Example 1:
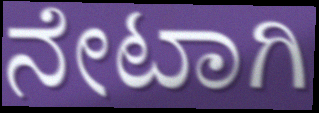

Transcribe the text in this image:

ನೇಟಾಗಿ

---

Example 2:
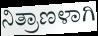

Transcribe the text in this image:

ನಿತ್ರಾಣಳಾಗಿ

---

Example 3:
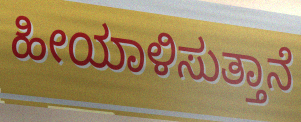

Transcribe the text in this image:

ಹೀಯಾಳಿಸುತ್ತಾನೆ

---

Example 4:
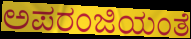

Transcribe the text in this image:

ಅಪರಂಜಿಯಂತೆ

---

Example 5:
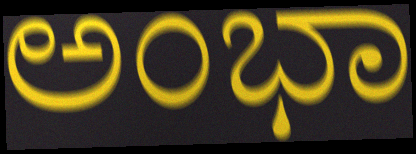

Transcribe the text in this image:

ಅಂಭಾ